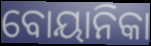
ବୋୟାନିକା